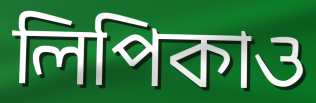
লিপিকাও